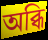
অব্ধি